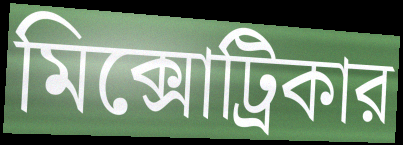
মিক্সোট্রিকার